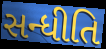
સન્ધીતિ